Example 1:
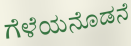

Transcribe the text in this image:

ಗೆಳೆಯನೊಡನೆ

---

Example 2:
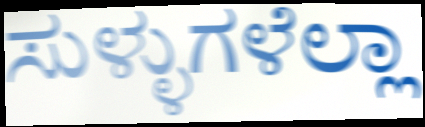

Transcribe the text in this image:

ಸುಳ್ಳುಗಳೆಲ್ಲಾ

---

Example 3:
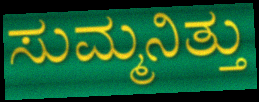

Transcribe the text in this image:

ಸುಮ್ಮನಿತ್ತು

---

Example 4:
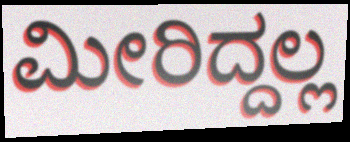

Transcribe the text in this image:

ಮೀರಿದ್ದಲ್ಲ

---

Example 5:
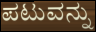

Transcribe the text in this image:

ಪಟುವನ್ನು